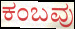
ಕಂಬವು